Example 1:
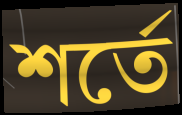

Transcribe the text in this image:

শর্তে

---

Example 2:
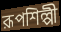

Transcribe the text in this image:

রূপশিল্পী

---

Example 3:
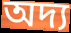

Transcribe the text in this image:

অদ্য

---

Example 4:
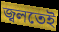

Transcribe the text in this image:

জ্বলতেই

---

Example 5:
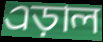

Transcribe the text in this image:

এড়াল